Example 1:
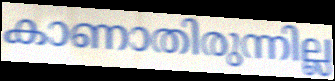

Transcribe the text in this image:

കാണാതിരുന്നില്ല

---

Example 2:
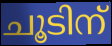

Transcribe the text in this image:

ചൂടിന്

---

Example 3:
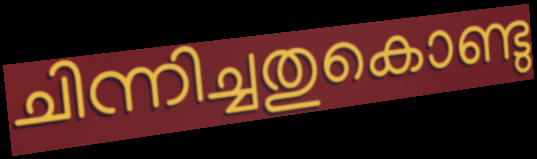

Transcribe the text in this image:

ചിന്നിച്ചതുകൊണ്ടു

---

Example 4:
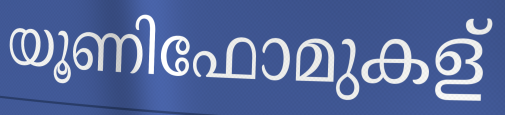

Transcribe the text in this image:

യൂണിഫോമുകള്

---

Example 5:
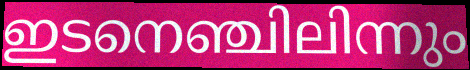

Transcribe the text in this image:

ഇടനെഞ്ചിലിന്നും